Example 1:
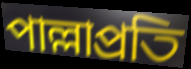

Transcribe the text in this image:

পাল্লাপ্রতি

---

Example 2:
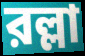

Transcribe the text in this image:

রল্লা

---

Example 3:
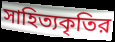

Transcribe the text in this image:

সাহিত্যকৃতির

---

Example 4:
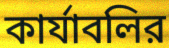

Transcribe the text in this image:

কার্যাবলির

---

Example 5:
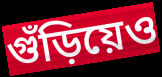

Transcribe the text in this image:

গুঁড়িয়েও